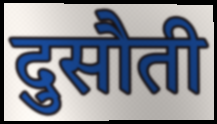
दुसौती